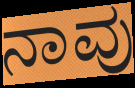
ನಾವು